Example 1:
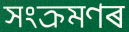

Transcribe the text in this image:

সংক্ৰমণৰ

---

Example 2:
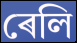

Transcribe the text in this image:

ৰেলি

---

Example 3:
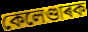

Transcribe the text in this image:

কেলেণ্ডাৰক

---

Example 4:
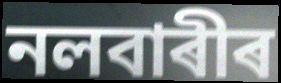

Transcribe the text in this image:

নলবাৰীৰ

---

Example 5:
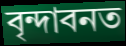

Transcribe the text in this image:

বৃন্দাবনত